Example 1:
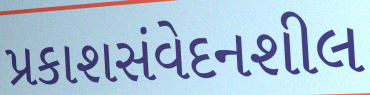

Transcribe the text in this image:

પ્રકાશસંવેદનશીલ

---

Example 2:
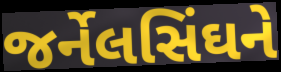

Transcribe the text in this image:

જર્નેલસિંઘને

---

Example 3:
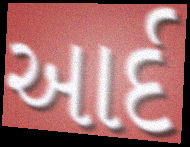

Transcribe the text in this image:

આર્દ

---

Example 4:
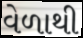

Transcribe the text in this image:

વેળાથી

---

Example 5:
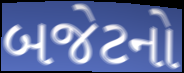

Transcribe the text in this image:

બજેટનો